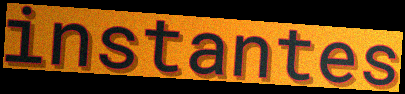
instantes